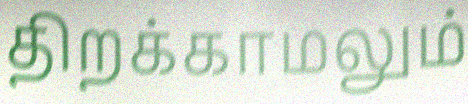
திறக்காமலும்